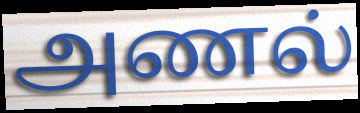
அணல்